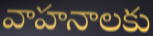
వాహనాలకు